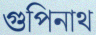
গুপিনাথ